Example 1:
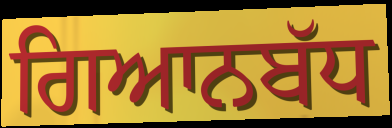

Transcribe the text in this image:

ਗਿਆਨਬੱਧ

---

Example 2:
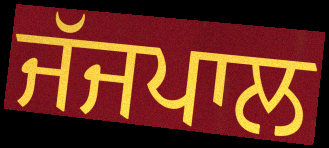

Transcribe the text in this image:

ਜੱਜਪਾਲ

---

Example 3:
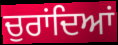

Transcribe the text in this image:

ਚੁਰਾਂਦਿਆਂ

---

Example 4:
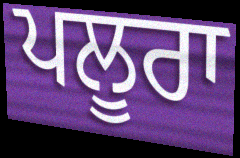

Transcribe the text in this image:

ਪਲੂਰਾ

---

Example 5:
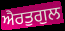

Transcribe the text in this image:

ਐਰਤੁਗੁਲ